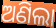
ଅଣିଲା